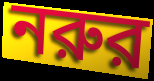
নরুর